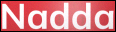
Nadda